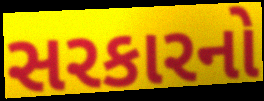
સરકારનો